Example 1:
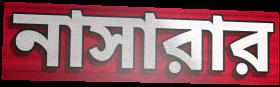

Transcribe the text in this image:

নাসারার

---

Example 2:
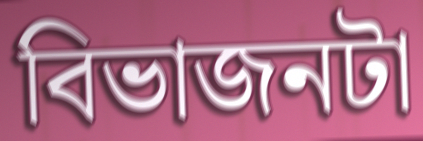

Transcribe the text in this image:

বিভাজনটা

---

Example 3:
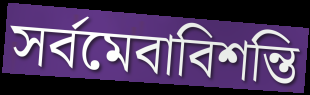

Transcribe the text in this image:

সর্বমেবাবিশন্তি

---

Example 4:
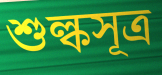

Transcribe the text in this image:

শুল্কসূত্র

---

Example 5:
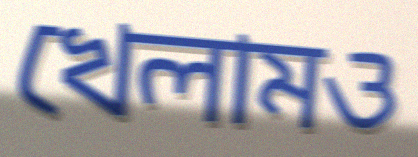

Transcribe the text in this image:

খেলামও